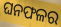
ଘନଫଳର